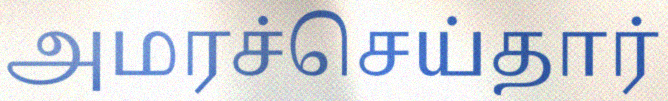
அமரச்செய்தார்